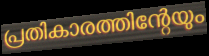
പ്രതികാരത്തിന്റേയും